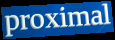
proximal